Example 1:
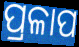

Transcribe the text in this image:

ପ୍ରଳାପ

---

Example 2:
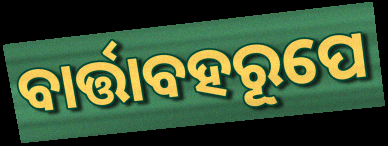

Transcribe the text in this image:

ବାର୍ତ୍ତାବହରୂପେ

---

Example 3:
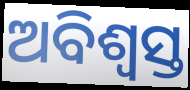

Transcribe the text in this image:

ଅବିଶ୍ୱସ୍ତ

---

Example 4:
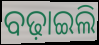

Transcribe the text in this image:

ବଢ଼ାଇଲି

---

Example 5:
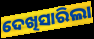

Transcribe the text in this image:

ଦେଖିସାରିଲା